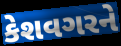
કેશવગરને